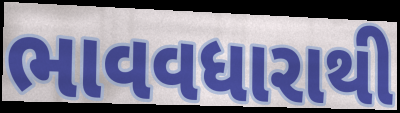
ભાવવધારાથી